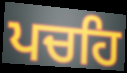
ਪਚਹਿ